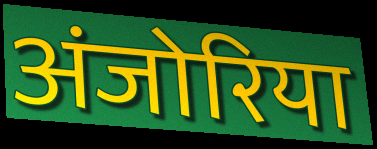
अंजोरिया